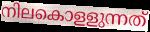
നിലകൊളളുന്നത്